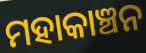
ମହାକାଞ୍ଚନ